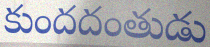
కుందదంతుడు